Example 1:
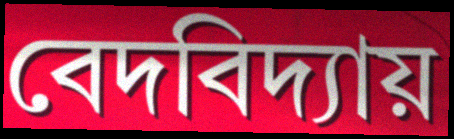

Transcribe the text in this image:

বেদবিদ্যায়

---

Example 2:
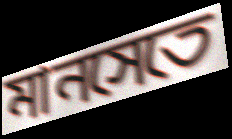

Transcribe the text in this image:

মানসেতে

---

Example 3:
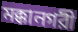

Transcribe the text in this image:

মক্কানগরী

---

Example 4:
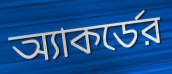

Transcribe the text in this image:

অ্যাকর্ডের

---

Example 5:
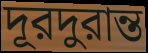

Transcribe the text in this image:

দূরদুরান্ত